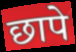
छापे